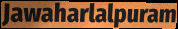
Jawaharlalpuram